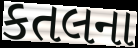
કતલના